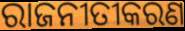
ରାଜନୀତୀକରଣ